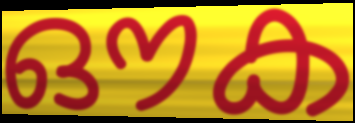
ഔക